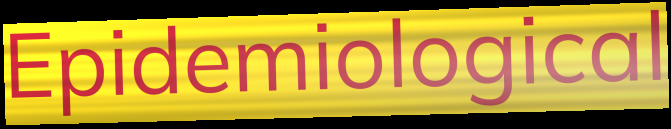
Epidemiological